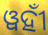
ୱହୀଁ